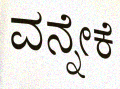
ವನ್ನೇಕೆ